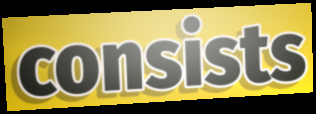
consists